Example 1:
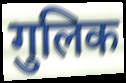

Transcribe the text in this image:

गुलिक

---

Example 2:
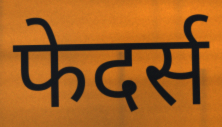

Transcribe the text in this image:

फेदर्स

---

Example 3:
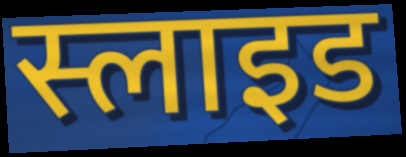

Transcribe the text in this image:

स्लाइड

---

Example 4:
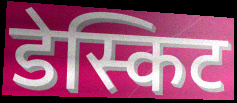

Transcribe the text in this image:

डेस्किट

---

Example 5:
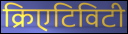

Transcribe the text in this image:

क्रिएटिविटी